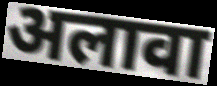
अलावा